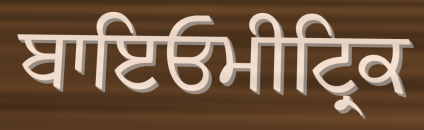
ਬਾਇਓਮੀਟ੍ਰਿਕ